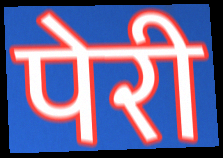
पेरी